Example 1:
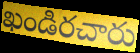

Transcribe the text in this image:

ఖండిరచారు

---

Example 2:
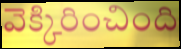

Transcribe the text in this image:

వెక్కిరించింది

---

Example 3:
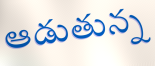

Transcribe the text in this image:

ఆడుతున్న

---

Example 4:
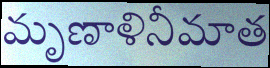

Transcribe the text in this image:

మృణాళినీమాత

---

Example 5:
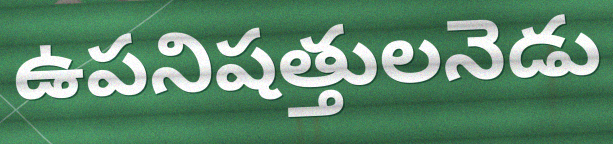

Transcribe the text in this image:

ఉపనిషత్తులనెడు